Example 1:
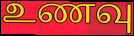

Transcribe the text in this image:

உணவு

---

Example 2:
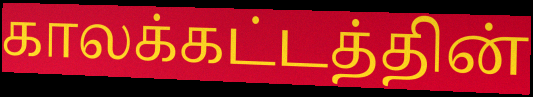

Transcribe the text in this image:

காலக்கட்டத்தின்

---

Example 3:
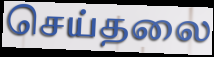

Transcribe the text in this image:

செய்தலை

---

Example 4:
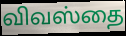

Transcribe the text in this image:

விவஸ்தை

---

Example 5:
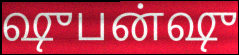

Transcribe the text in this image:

ஷுபன்ஷு